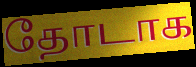
தோடாக